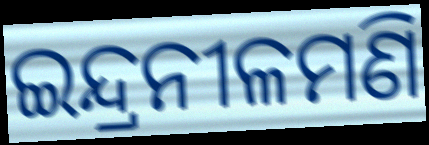
ଇନ୍ଦ୍ରନୀଳମଣି